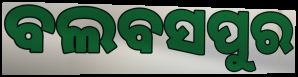
ବଲବସପୁର